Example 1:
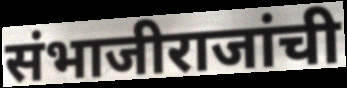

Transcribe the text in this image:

संभाजीराजांची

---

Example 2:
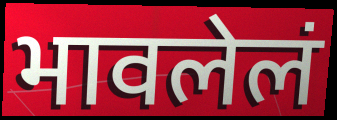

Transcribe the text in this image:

भावलेलं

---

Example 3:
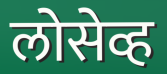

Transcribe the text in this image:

लोसेव्ह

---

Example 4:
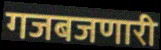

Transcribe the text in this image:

गजबजणारी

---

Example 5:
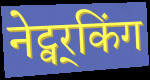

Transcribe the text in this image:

नेट्वर्किंग